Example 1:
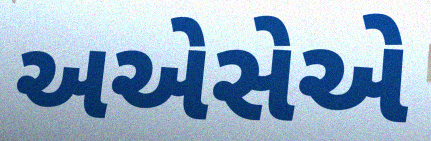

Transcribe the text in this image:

અએસેએ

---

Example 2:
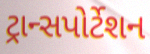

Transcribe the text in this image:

ટ્રાન્સપોર્ટેશન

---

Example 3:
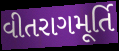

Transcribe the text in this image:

વીતરાગમૂર્તિ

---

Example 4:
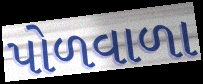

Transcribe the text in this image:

પોળવાળા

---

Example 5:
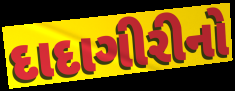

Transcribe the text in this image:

દાદાગીરીનો